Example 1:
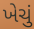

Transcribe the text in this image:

ખેચું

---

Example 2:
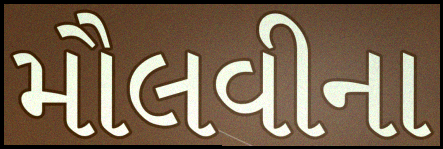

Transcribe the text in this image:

મૌલવીના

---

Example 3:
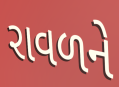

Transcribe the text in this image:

રાવળને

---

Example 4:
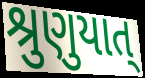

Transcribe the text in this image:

શ્રુણુયાત્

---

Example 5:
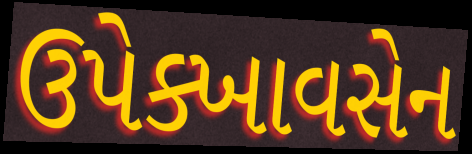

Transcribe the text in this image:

ઉપેક્ખાવસેન